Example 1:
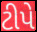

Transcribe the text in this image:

ટીપે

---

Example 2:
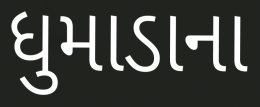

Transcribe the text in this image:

ધુમાડાના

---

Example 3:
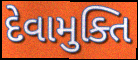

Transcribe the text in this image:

દેવામુક્તિ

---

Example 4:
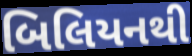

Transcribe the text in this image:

બિલિયનથી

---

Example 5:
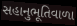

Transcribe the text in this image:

સહાનુભૂતિવાળા